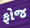
ફોજ